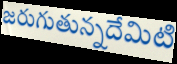
జరుగుతున్నదేమిటి